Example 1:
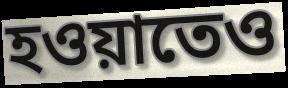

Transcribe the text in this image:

হওয়াতেও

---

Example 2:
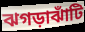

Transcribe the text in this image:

ঝগড়াঝাঁটি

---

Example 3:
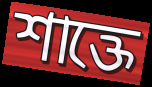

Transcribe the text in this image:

শাক্তে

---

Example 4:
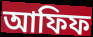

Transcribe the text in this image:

আফিফ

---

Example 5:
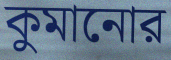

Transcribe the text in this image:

কুমানোর